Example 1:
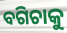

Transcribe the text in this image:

ବଗିଚାକୁ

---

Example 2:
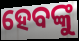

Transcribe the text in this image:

ହେବଙ୍କୁ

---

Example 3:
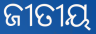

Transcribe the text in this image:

ଜୀତୀୟ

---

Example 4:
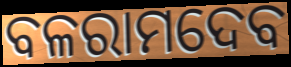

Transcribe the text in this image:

ବଳରାମଦେବ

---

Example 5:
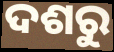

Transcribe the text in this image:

ଦଶରୁ